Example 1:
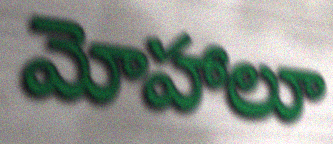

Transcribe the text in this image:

మోహాలూ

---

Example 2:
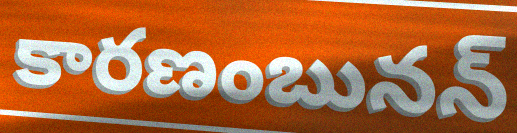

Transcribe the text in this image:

కారణంబునన్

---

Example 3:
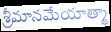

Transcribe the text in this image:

శ్రీమానమేయాత్మా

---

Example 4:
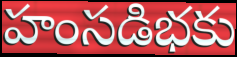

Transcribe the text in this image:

హంసడిభకు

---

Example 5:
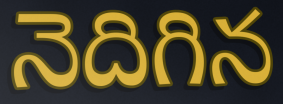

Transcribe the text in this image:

నెదిగిన